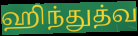
ஹிந்துத்வ